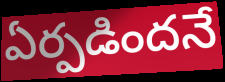
ఏర్పడిందనే